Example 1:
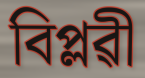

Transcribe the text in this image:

বিপ্লৱী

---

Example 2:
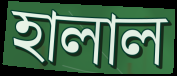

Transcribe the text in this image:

হালাল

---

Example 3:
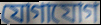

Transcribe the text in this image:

যোগাযোগ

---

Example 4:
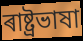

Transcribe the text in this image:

ৰাষ্ট্ৰভাষা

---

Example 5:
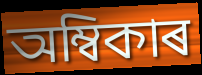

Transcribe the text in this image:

অম্বিকাৰ